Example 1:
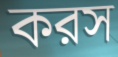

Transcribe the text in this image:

করস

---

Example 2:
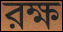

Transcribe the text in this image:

রক্ষ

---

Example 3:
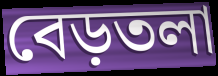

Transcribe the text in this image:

বেড়তলা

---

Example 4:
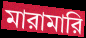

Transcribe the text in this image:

মারামারি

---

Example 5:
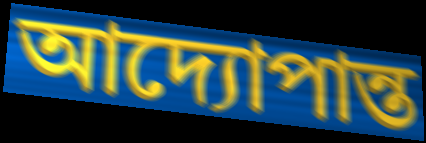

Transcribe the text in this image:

আদ্যোপান্ত